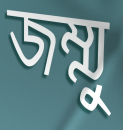
জম্মু